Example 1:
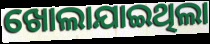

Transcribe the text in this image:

ଖୋଲାଯାଇଥିଲା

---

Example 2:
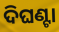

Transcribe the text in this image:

ଦିଘଣ୍ଟା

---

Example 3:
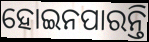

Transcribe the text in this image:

ହୋଇନପାରନ୍ତି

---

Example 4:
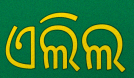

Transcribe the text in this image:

ଏଲିଲ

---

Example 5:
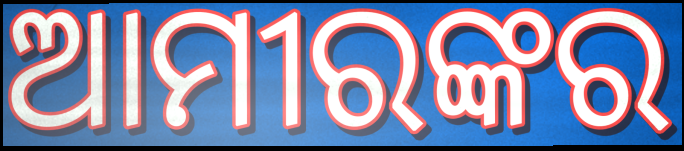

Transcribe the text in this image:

ଆମୀରଙ୍କର